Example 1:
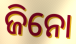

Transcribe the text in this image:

ଜିନୋ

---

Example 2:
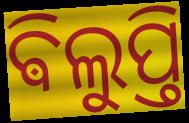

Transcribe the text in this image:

ଵିଲୁପ୍ତି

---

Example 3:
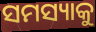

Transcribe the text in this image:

ସମସ୍ୟାକୁ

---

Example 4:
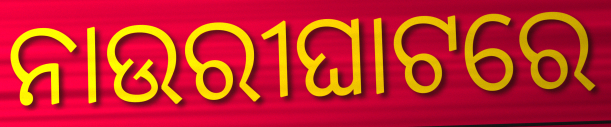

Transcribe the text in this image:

ନାଉରୀଘାଟରେ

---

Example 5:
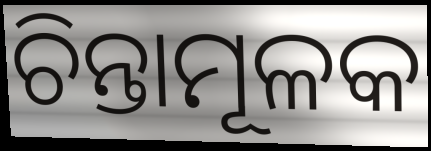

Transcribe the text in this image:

ଚିନ୍ତାମୂଳକ